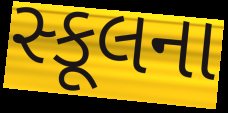
સ્કૂલના